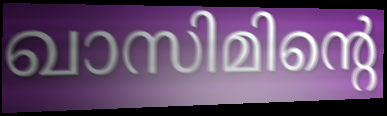
ഖാസിമിന്റെ